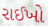
રાઈખો